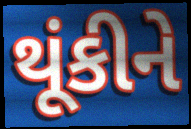
થૂંકીને